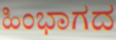
ಹಿಂಭಾಗದ